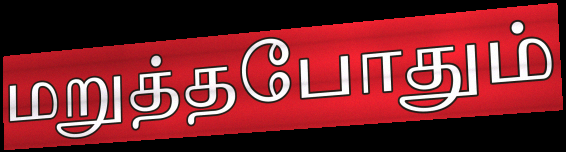
மறுத்தபோதும்